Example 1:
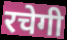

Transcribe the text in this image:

रचेगी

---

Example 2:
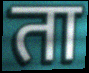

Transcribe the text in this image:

ता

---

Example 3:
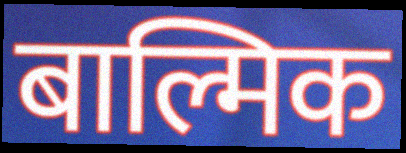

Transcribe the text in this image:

बाल्मिक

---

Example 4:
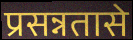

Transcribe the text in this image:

प्रसन्नतासे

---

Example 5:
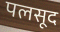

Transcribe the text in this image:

पलसूद